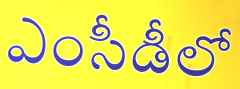
ఎంసీడీలో